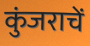
कुंजराचें